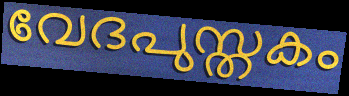
വേദപുസ്തകം